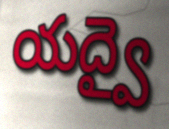
యద్వై